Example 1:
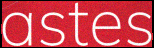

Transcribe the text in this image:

astes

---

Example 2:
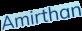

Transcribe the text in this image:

Amirthan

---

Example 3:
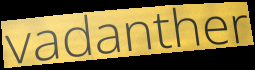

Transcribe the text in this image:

vadanther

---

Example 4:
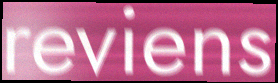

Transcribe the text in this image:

reviens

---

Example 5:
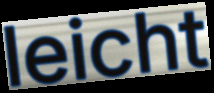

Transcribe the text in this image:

leicht